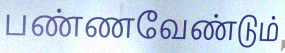
பண்ணவேண்டும்